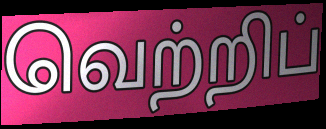
வெற்றிப்